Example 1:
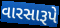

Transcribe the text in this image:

વારસારૂપે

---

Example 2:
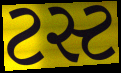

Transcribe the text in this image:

ટસ્ટ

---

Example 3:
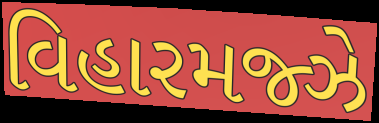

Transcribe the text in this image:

વિહારમજ્ઝે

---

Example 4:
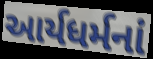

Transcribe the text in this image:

આર્યધર્મનાં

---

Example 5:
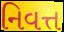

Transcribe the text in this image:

નિવત્ત